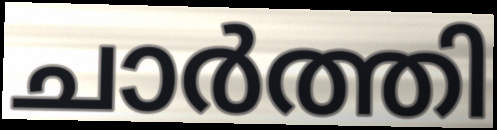
ചാർത്തി